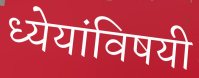
ध्येयांविषयी